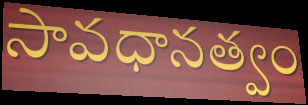
సావధానత్వం